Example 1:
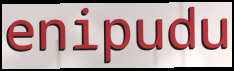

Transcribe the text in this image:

enipudu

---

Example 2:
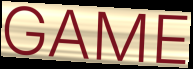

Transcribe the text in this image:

GAME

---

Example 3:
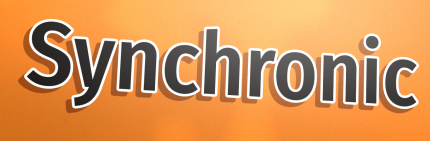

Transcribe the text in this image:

Synchronic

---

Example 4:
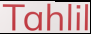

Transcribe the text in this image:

Tahlil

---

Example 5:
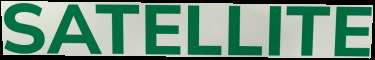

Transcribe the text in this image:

SATELLITE